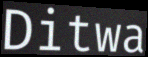
Ditwa